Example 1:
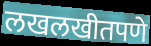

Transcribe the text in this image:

लखलखीतपणे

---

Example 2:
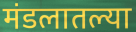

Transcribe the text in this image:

मंडलातल्या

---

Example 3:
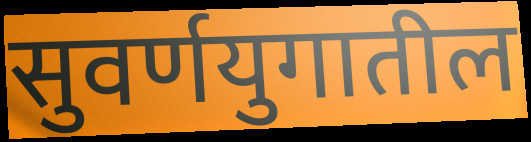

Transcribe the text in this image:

सुवर्णयुगातील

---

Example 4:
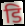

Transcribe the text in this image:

डि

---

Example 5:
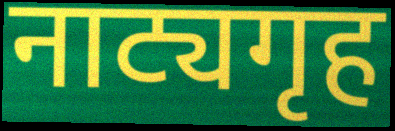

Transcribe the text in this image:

नाट्यगृह